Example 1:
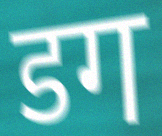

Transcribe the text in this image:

डग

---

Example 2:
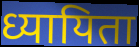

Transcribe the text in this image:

ध्यायिता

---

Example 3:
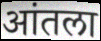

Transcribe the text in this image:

आंतला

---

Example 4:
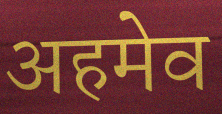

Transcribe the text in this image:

अहमेव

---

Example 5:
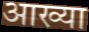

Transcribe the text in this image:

आख्या